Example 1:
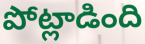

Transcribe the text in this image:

పోట్లాడింది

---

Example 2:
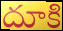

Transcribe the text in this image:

దూకి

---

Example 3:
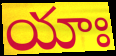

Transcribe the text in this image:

యాః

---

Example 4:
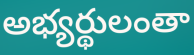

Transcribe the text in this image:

అభ్యర్థులంతా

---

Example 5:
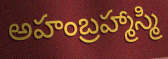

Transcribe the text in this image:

అహంబ్రహ్మాస్మి